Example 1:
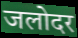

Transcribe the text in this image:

जलोदर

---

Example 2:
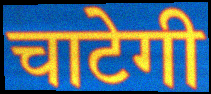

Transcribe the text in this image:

चाटेगी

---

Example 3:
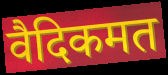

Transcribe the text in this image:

वैदिकमत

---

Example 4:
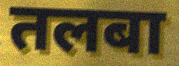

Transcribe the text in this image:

तलबा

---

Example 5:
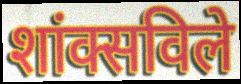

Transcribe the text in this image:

शांक्सविले